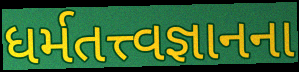
ધર્મતત્ત્વજ્ઞાનના